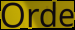
Orde